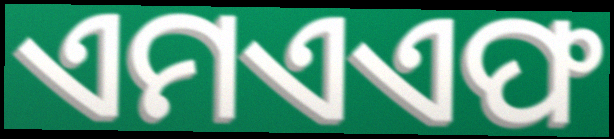
ଏମଏଏଫ